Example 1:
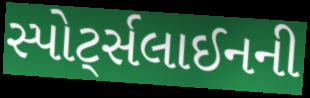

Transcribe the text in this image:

સ્પોર્ટ્સલાઈનની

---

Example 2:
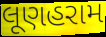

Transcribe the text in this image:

લૂણહરામ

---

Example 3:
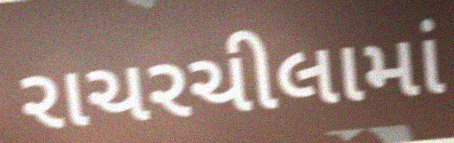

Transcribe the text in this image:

રાચરચીલામાં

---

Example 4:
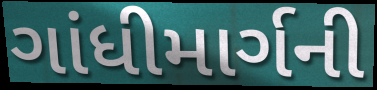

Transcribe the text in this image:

ગાંધીમાર્ગની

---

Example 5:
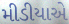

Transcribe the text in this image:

મીડીયાએ